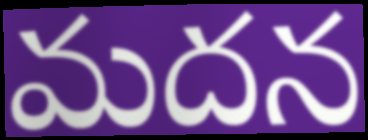
మదన